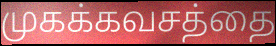
முகக்கவசத்தை